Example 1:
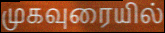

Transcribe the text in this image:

முகவுரையில்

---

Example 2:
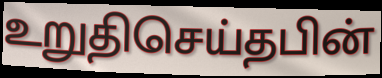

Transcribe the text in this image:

உறுதிசெய்தபின்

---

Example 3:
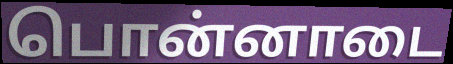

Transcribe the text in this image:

பொன்னாடை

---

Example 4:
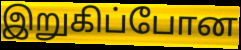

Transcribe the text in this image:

இறுகிப்போன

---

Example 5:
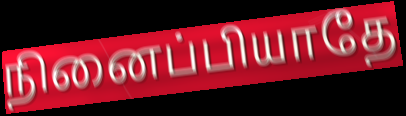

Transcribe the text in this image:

நினைப்பியாதே